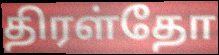
திரள்தோ